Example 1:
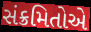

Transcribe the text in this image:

સંક્રમિતોએ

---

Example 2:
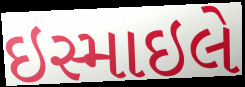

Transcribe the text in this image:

ઇસ્માઇલે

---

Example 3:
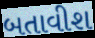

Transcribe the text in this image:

બતાવીશ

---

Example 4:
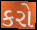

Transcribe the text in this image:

કરો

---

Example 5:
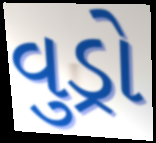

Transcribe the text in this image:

વુડ્રો